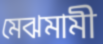
মেঝমামী